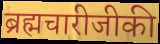
ब्रह्मचारीजीकी